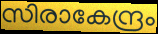
സിരാകേന്ദ്രം